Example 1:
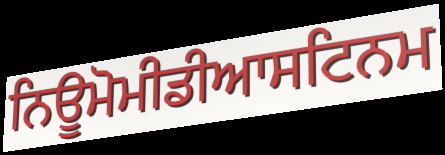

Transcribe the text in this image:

ਨਿਊਮੋਮੀਡੀਆਸਟਿਨਮ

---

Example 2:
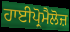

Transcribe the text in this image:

ਹਾਈਪ੍ਰੋਮੈਲੋਜ਼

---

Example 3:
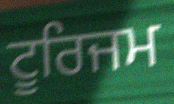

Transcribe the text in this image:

ਟੂਰਿਜਮ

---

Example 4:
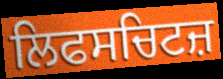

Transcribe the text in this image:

ਲਿਫਸਚਿਟਜ਼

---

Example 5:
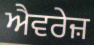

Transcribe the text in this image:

ਐਵਰੇਜ਼